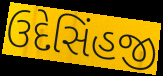
ઉદેસિંહજી